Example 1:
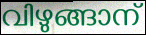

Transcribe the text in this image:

വിഴുങ്ങാന്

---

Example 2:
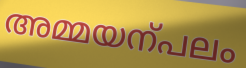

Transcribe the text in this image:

അമ്മയന്പലം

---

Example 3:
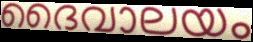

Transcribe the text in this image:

ദൈവാലയം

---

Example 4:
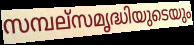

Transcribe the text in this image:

സമ്പല്സമൃദ്ധിയുടെയും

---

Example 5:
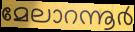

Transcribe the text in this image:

മേലാറന്നൂർ